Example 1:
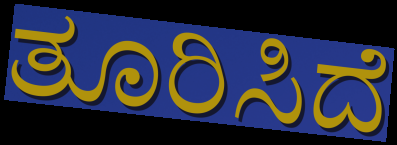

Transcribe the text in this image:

ತೂರಿಸಿದೆ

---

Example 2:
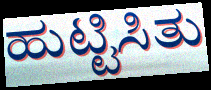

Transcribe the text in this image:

ಹುಟ್ಟಿಸಿತು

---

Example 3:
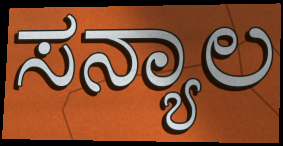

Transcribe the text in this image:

ಸನ್ಯಾಲ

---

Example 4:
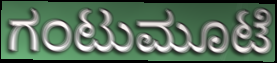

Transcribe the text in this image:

ಗಂಟುಮೂಟೆ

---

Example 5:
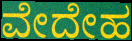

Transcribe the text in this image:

ವೇದೇಹ